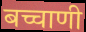
बच्चाणी